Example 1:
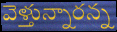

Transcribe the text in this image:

వెళ్తున్నారన్న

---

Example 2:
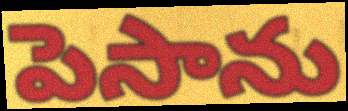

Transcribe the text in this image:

పెసాను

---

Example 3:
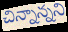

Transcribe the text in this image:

చిన్నాన్నని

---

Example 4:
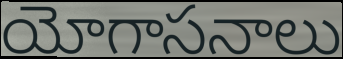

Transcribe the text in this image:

యోగాసనాలు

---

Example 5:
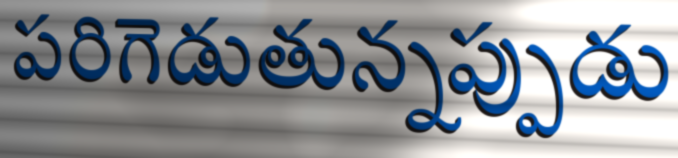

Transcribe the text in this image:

పరిగెడుతున్నప్పుడు